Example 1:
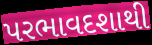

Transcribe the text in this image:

પરભાવદશાથી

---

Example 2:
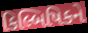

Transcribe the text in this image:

કિલ્બિષિકને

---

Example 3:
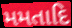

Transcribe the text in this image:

મમતાદિ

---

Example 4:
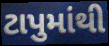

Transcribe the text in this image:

ટાપુમાંથી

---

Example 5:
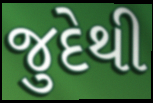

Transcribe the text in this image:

જુદેથી